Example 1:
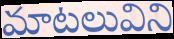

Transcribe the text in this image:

మాటలువిని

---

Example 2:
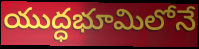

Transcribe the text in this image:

యుద్ధభూమిలోనే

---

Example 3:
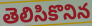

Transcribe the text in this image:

తెలిసికొనిన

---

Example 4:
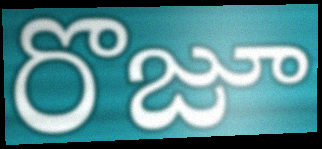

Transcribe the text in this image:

రొజూ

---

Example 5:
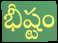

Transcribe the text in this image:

భీష్టం